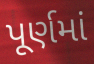
પૂર્ણમાં